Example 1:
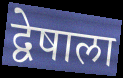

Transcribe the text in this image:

द्वेषाला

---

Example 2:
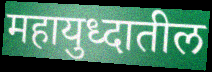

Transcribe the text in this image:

महायुध्दातील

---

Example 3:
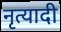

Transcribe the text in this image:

नृत्यादी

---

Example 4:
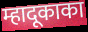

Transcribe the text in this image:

म्हादूकाका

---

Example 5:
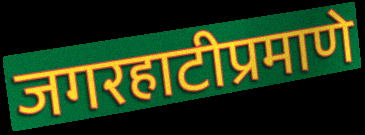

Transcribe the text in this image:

जगरहाटीप्रमाणे